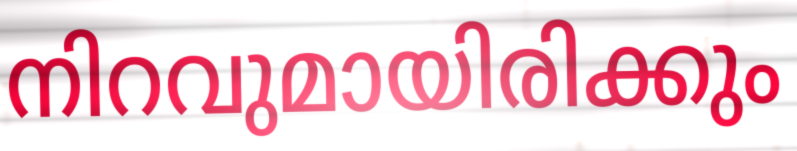
നിറവുമായിരിക്കും